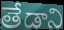
తేడాని